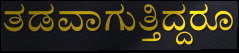
ತಡವಾಗುತ್ತಿದ್ದರೂ